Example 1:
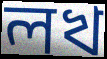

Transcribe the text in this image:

লখ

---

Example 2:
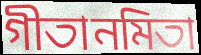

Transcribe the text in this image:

গীতানমিতা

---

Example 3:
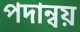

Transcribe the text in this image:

পদান্বয়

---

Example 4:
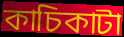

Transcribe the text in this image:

কাচিকাটা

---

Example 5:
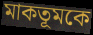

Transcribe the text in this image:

মাকতূমকে